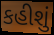
કહીશું